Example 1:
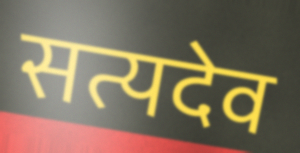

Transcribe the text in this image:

सत्यदेव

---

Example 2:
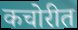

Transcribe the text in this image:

कचोरीत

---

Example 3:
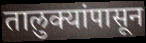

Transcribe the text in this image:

तालुक्यांपासून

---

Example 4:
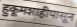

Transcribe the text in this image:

हुकूमशाहीपासून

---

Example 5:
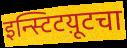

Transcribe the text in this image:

इन्स्टिटय़ूटचा